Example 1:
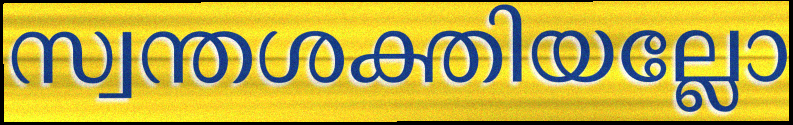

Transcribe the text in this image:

സ്വന്തശക്തിയല്ലോ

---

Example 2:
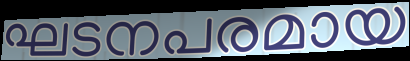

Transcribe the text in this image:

ഘടനപരമായ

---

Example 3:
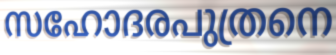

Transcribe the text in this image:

സഹോദരപുത്രനെ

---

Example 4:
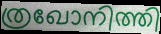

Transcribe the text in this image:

ത്രഖോനിത്തി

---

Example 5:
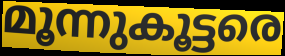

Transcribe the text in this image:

മൂന്നുകൂട്ടരെ